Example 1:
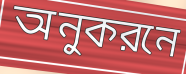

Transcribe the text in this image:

অনুকরনে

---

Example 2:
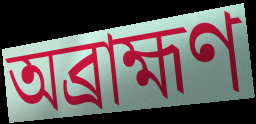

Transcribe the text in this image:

অব্রাহ্মণ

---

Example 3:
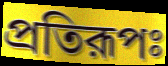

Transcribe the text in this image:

প্রতিরূপঃ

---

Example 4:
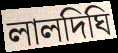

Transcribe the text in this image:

লালদিঘি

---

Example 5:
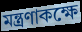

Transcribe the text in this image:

মন্ত্রণাকক্ষে